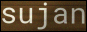
sujan